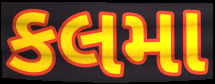
કલમા